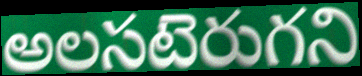
అలసటెరుగని